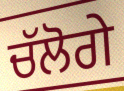
ਚੱਲੋਗੇ